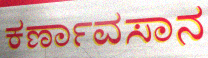
ಕರ್ಣಾವಸಾನ